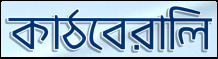
কাঠবেরালি